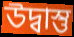
উদ্বাস্তু